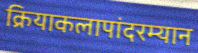
क्रियाकलापांदरम्यान